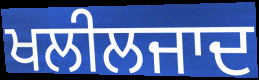
ਖਲੀਲਜਾਦ